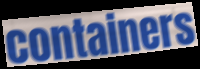
containers